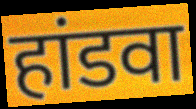
हांडवा